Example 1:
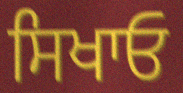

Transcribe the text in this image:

ਸਿਖਾਓ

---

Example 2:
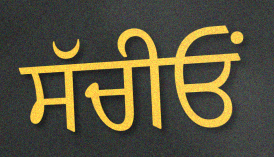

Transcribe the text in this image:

ਸੱਚੀਓਂ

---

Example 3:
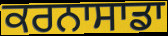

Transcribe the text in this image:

ਕਰਨਾਸਾਡਾ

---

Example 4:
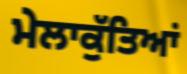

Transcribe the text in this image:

ਮੇਲਾਕੁੱਤਿਆਂ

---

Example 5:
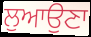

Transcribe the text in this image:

ਲੁਆਉਣਾ